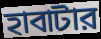
হাবাটার